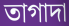
তাগাদা